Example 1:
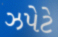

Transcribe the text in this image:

ઝપેટે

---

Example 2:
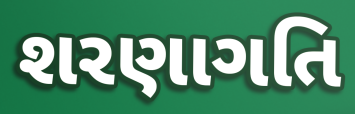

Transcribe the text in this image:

શરણાગતિ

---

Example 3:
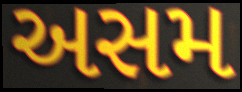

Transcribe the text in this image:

અસમ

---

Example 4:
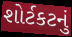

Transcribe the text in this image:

શોર્ટકટનું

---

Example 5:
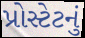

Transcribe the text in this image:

પ્રોસ્ટેટનું